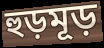
হুড়মূড়